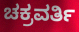
ಚಕ್ರವರ್ತಿ